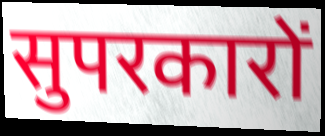
सुपरकारों